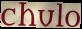
chulo